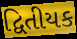
દ્વિતીયક